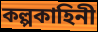
কল্পকাহিনী